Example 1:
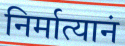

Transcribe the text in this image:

निर्मात्यानं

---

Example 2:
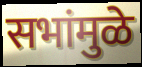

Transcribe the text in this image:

सभांमुळे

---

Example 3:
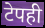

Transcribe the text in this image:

टेपही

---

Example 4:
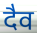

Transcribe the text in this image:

दैव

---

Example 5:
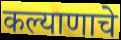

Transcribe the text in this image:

कल्याणाचे